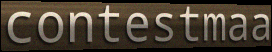
contestmaa